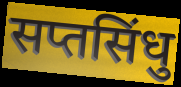
सप्तसिंधु